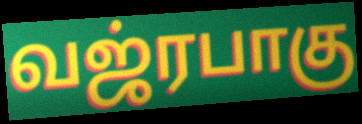
வஜ்ரபாகு